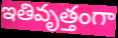
ఇతివృత్తంగా